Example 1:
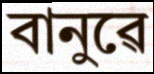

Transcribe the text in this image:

বানুৱে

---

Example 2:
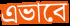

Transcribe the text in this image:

এভাবে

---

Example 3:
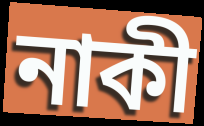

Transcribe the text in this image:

নাকী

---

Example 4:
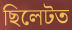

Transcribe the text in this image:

ছিলেটত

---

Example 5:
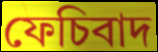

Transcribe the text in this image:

ফেচিবাদ